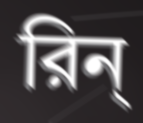
রিন্